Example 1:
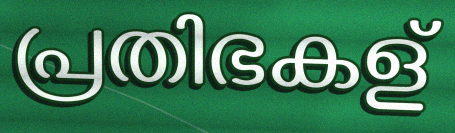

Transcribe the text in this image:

പ്രതിഭകള്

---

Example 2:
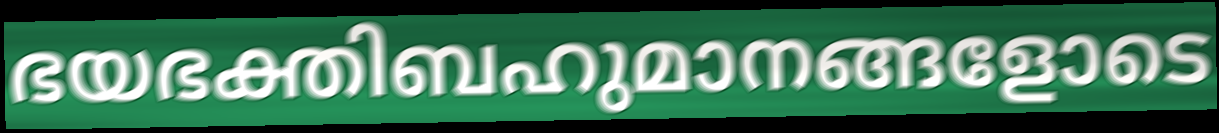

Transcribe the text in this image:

ഭയഭക്തിബഹുമാനങ്ങളോടെ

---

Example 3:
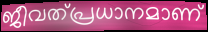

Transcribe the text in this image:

ജീവത്പ്രധാനമാണ്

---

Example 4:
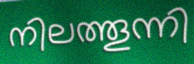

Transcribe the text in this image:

നിലത്തൂന്നി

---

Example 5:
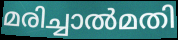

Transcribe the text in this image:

മരിച്ചാൽമതി